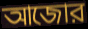
আজোর